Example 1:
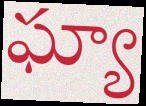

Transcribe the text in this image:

ఘ్యా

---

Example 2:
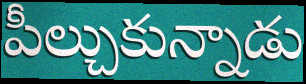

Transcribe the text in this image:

పీల్చుకున్నాడు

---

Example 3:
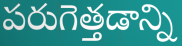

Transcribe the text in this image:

పరుగెత్తడాన్ని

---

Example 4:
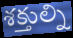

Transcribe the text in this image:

శక్తుల్ని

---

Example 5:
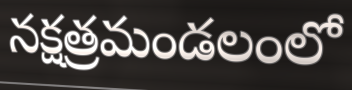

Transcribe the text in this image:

నక్షత్రమండలంలో